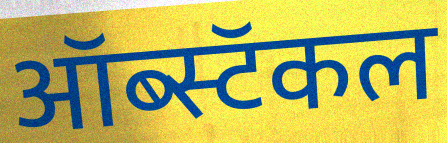
ऑब्स्टॅकल